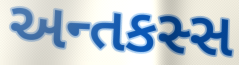
અન્તકસ્સ